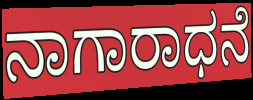
ನಾಗಾರಾಧನೆ